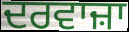
ਦਰਵਾਜ਼ਾ